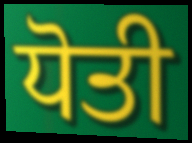
ਧੋਤੀ